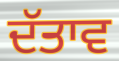
ਦੱਤਾਵ